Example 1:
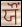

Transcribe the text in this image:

ਯੌਂ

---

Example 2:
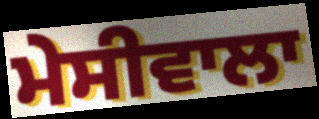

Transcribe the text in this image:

ਮੇਸੀਵਾਲਾ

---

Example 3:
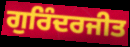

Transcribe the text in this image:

ਗੁਰਿੰਦਰਜੀਤ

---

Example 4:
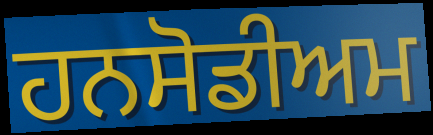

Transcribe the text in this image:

ਹਨਸੋਡੀਅਮ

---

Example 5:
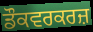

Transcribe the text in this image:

ਡੌਕਵਰਕਰਜ਼